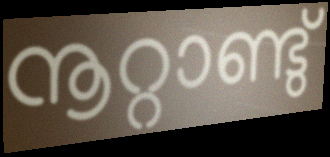
നൂറ്റാണ്ടു്